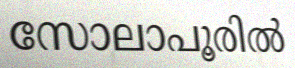
സോലാപൂരിൽ